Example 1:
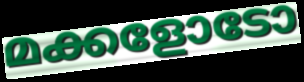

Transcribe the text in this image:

മക്കളോടോ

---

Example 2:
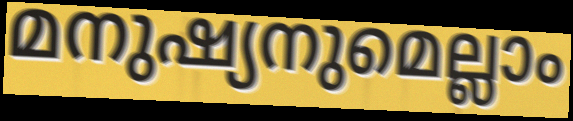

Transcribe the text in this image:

മനുഷ്യനുമെല്ലാം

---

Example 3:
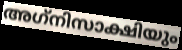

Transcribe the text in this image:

അഗ്‌നിസാക്ഷിയും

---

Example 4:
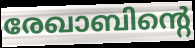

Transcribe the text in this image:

രേഖാബിന്റെ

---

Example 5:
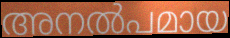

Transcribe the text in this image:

അനൽപമായ